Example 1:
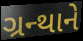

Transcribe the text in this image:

ગ્રન્થાને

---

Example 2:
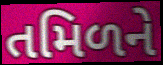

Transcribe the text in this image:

તમિળને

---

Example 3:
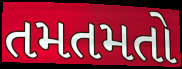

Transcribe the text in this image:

તમતમતો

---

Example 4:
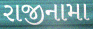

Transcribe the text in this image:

રાજીનામા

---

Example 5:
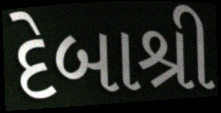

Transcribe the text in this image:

દેબાશ્રી